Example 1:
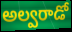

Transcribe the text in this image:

అల్వరాడో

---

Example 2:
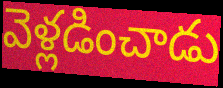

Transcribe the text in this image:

వెళ్లడించాడు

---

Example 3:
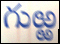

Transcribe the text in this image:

గుఱ్ఱ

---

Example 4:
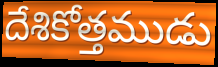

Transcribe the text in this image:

దేశికోత్తముడు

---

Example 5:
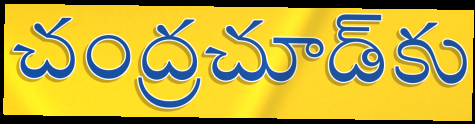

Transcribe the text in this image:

చంద్రచూడ్‌కు